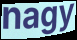
nagy